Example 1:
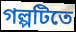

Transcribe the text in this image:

গল্পটিতে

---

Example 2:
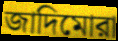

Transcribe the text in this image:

জাদিমোরা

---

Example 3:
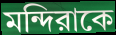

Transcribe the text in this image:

মন্দিরাকে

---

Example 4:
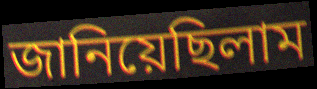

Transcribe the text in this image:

জানিয়েছিলাম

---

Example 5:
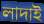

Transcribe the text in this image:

লাদাই